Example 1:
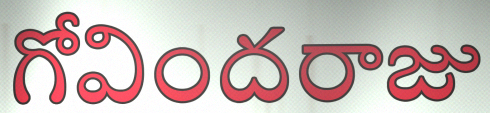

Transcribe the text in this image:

గోవిందరాజు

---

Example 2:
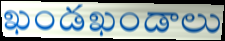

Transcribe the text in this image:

ఖండఖండాలు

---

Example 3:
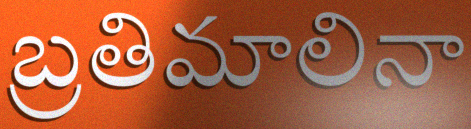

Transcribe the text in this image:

బ్రతిమాలినా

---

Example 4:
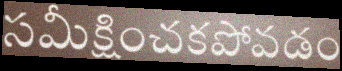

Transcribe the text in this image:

సమీక్షించకపోవడం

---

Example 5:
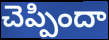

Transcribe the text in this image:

చెప్పిందా